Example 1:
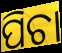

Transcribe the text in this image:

ପିଚା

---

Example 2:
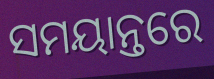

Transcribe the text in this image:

ସମୟାନ୍ତରେ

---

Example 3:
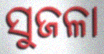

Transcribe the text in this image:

ସୁଜଳା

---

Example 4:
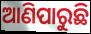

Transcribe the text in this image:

ଆଣିପାରୁଛି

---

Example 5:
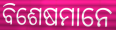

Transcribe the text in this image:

ବିଶେଷମାନେ